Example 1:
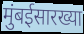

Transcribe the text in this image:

मुंबईसारख्या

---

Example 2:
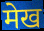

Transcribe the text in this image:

मेख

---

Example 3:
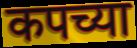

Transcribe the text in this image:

कपच्या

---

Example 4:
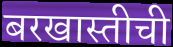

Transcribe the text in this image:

बरखास्तीची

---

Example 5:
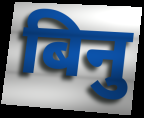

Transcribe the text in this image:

बिनु